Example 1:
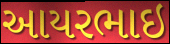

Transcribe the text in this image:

આયરભાઇ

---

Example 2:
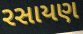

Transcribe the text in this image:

રસાયણ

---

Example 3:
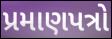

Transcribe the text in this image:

પ્રમાણપત્રો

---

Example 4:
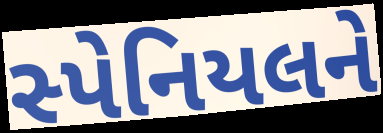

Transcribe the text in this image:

સ્પેનિયલને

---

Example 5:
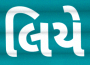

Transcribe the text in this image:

લિયે